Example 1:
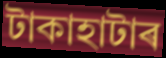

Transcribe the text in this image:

টাকাহাটাৰ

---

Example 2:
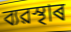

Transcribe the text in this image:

ব্যৱস্থাৰ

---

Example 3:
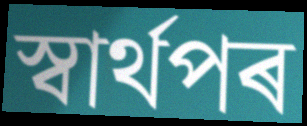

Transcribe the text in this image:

স্বাৰ্থপৰ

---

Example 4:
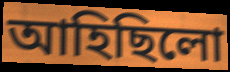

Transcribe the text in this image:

আহিছিলো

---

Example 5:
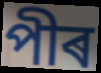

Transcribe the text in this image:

পীৰ